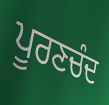
ਪੂਰਣਚੰਦ